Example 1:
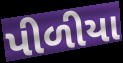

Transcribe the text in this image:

પીળીયા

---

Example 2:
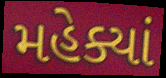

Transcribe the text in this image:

મહેક્યાં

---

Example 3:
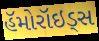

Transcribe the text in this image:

હૅમોરૉઇડ્સ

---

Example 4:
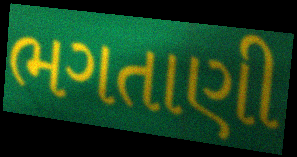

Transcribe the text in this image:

ભગતાણી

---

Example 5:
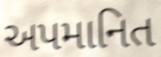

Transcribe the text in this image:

અપમાનિત